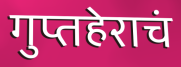
गुप्तहेराचं